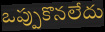
ఒప్పుకొనలేదు